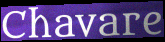
Chavare